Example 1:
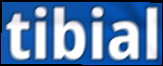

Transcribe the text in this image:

tibial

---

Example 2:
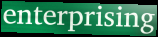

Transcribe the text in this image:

enterprising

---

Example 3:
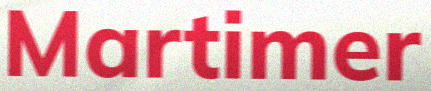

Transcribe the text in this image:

Martimer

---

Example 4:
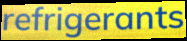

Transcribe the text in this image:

refrigerants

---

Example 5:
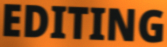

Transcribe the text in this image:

EDITING